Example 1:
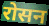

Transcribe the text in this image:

रोसन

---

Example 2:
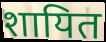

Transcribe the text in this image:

शायित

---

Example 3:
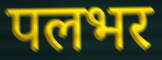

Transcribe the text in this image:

पलभर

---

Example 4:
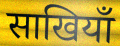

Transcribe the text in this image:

साखियाँ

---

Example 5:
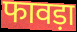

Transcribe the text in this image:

फावड़ा